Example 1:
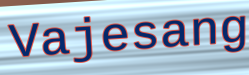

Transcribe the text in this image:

Vajesang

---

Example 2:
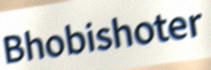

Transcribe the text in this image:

Bhobishoter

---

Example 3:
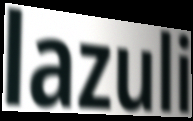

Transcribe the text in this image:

lazuli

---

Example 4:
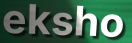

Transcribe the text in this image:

eksho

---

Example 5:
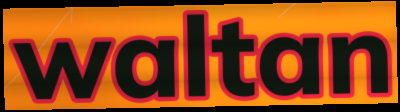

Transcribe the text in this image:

waltan